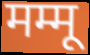
मम्मू